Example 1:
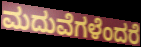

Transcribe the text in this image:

ಮದುವೆಗಳೆಂದರೆ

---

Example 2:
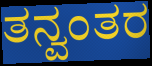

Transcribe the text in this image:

ತನ್ವಂತರ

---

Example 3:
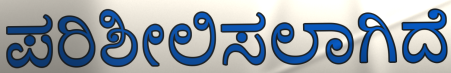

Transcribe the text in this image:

ಪರಿಶೀಲಿಸಲಾಗಿದೆ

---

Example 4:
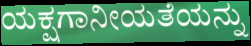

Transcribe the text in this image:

ಯಕ್ಷಗಾನೀಯತೆಯನ್ನು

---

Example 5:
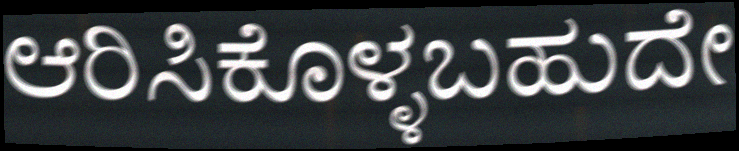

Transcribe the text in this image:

ಆರಿಸಿಕೊಳ್ಳಬಹುದೇ